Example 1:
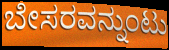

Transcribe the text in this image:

ಬೇಸರವನ್ನುಂಟು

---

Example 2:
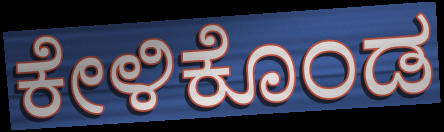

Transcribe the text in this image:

ಕೇಳಿಕೊಂಡ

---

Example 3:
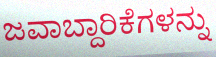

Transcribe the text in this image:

ಜವಾಬ್ದಾರಿಕೆಗಳನ್ನು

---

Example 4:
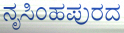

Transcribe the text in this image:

ನೃಸಿಂಹಪುರದ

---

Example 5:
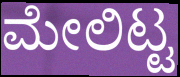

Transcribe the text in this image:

ಮೇಲಿಟ್ಟ